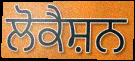
ਲੋਕੈਸ਼ਨ